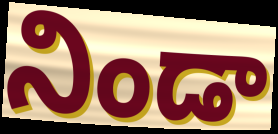
నిండా